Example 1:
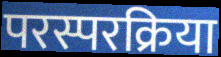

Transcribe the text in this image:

परस्परक्रिया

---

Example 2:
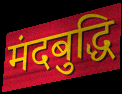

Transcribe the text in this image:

मंदबुद्धि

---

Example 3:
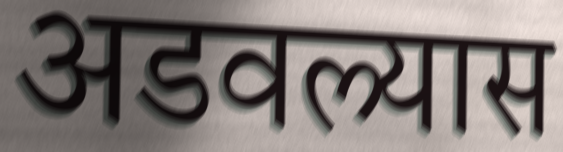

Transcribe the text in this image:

अडवल्यास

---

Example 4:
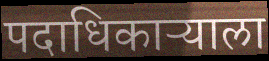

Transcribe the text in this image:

पदाधिकाऱ्याला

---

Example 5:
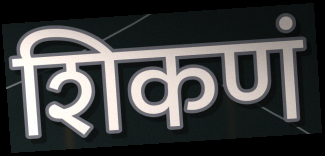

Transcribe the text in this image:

शिकणं